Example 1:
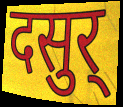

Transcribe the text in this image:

दसुर्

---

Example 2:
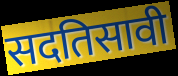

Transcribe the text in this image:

सदतिसावी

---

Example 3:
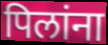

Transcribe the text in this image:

पिलांना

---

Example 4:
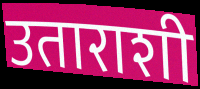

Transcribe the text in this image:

उताराशी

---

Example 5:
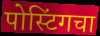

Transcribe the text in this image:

पोस्टिंगचा